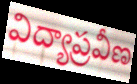
విద్యాప్రవీణ